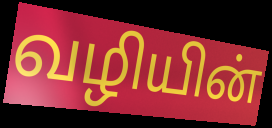
வழியின்